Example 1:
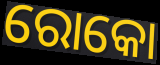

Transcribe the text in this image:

ରୋକୋ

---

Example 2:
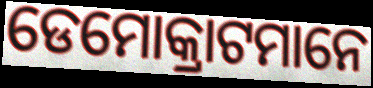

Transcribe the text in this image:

ଡେମୋକ୍ରାଟମାନେ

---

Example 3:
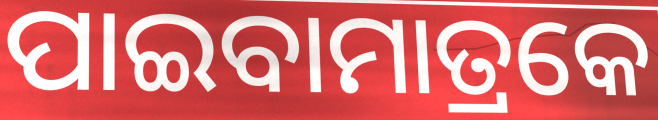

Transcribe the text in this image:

ପାଇବାମାତ୍ରକେ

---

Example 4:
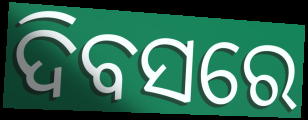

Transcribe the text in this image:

ଦିବସରେ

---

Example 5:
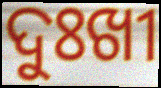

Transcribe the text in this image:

ଦୁଃଖୀ